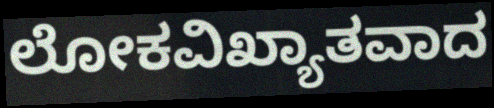
ಲೋಕವಿಖ್ಯಾತವಾದ